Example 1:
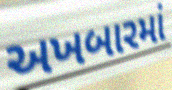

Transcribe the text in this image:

અખબારમાં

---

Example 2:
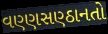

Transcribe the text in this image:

વણ્ણસણ્ઠાનતો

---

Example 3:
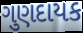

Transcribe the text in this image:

ગુણદાયક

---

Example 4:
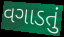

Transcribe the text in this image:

વગાડતું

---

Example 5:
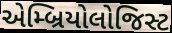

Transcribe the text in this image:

એમ્બ્રિયોલોજિસ્ટ